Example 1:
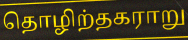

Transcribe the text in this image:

தொழிற்தகராறு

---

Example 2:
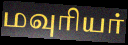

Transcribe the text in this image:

மவுரியர்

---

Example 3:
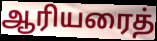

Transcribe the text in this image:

ஆரியரைத்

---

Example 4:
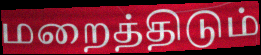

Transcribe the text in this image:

மறைத்திடும்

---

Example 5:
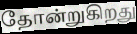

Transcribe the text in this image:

தோன்றுகிறது